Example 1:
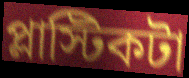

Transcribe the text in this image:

প্লাস্টিকটা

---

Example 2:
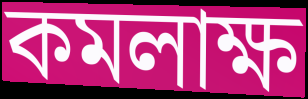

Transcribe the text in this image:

কমলাক্ষ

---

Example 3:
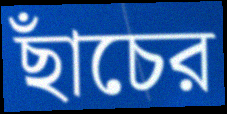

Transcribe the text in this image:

ছাঁচের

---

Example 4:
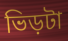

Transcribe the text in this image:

ভিড়টা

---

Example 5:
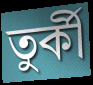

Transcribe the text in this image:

তুর্কী